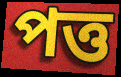
পত্ত